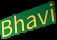
Bhavi